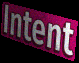
Intent